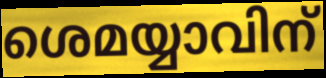
ശെമയ്യാവിന്